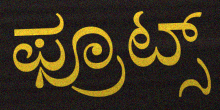
ಫ್ರೂಟ್ಸ್